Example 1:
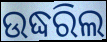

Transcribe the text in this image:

ଉଦ୍ଧରିଲ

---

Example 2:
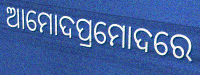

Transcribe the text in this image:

ଆମୋଦପ୍ରମୋଦରେ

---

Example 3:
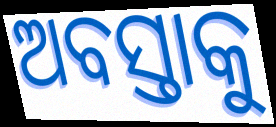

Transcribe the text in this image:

ଅବସ୍ତାକୁ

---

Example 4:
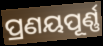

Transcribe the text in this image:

ପ୍ରଣୟପୂର୍ଣ୍ଣ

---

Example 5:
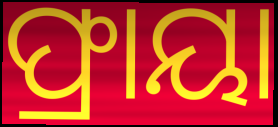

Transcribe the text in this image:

ଫ୍ରାୟା